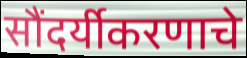
सौंदर्यीकरणाचे